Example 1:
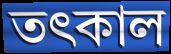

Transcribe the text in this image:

তৎকাল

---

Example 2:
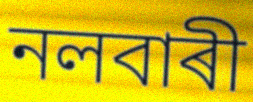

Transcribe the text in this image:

নলবাৰী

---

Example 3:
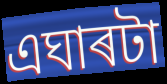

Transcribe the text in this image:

এঘাৰটা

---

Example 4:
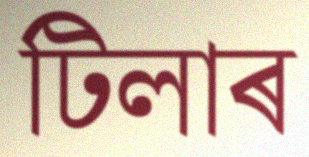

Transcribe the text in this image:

টিলাৰ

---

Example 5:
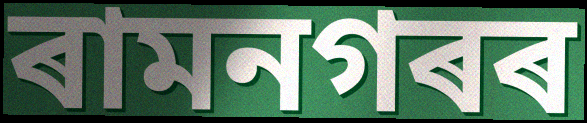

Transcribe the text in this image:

ৰামনগৰৰ